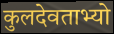
कुलदेवताभ्यो